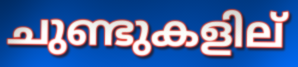
ചുണ്ടുകളില്